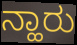
ನ್ಹಾರು